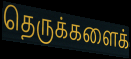
தெருக்களைக்